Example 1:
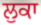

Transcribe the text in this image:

ਲੁਕਾ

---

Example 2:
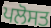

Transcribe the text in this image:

ਪਲੋਸਤ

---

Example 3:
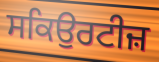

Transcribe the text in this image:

ਸਕਿਉਰਟੀਜ਼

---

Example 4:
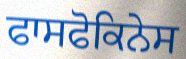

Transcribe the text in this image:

ਫਾਸਫੋਕਿਨੇਸ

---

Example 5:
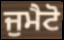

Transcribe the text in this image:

ਜੁਮੈਟੋ